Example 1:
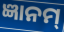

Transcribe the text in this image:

ଜ୍ଞାନମ୍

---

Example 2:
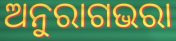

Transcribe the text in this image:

ଅନୁରାଗଭରା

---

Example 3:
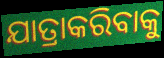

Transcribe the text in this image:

ଯାତ୍ରାକରିବାକୁ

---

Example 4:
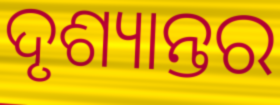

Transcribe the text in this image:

ଦୃଶ୍ୟାନ୍ତର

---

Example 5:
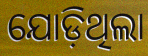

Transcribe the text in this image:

ଯୋଡ଼ିଥିଲା